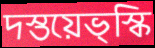
দস্তয়েভ্স্কি